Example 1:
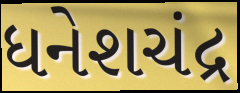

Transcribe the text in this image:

ધનેશચંદ્ર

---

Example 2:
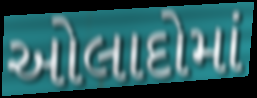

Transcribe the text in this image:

ઓલાદોમાં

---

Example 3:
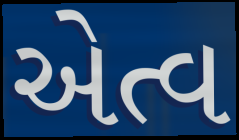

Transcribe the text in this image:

એત્વ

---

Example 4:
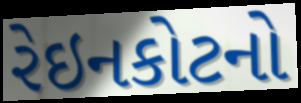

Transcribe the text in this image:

રેઇનકોટનો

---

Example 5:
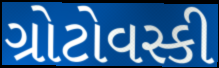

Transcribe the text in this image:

ગ્રોટોવસ્કી